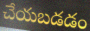
చేయబడడం